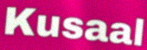
Kusaal